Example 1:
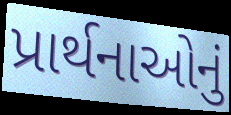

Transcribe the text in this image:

પ્રાર્થનાઓનું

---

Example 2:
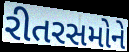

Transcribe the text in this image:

રીતરસમોને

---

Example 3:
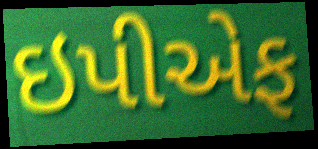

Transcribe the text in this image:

ઇપીએફ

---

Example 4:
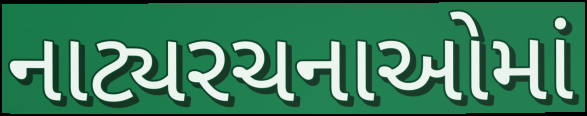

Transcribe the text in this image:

નાટ્યરચનાઓમાં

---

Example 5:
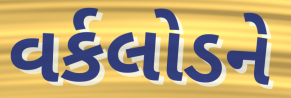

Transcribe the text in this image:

વર્કલોડને